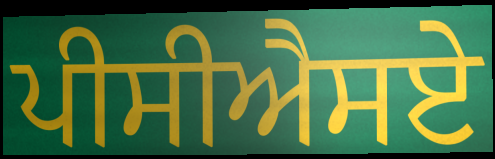
ਪੀਸੀਐਸਏ